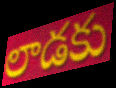
లాడకు